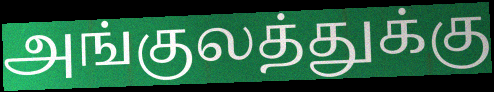
அங்குலத்துக்கு